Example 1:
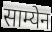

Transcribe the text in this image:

साम्येन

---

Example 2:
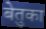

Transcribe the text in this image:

बेतुका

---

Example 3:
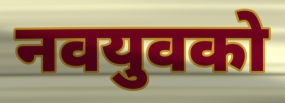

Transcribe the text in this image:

नवयुवको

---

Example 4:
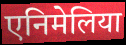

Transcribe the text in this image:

एनिमेलिया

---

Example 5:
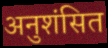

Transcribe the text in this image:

अनुशंसित